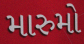
મારુમો